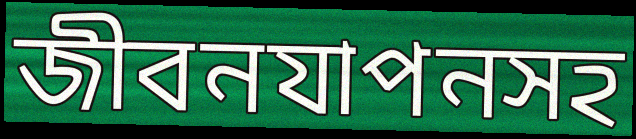
জীবনযাপনসহ